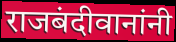
राजबंदीवानांनी